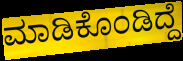
ಮಾಡಿಕೊಂಡಿದ್ದೆ